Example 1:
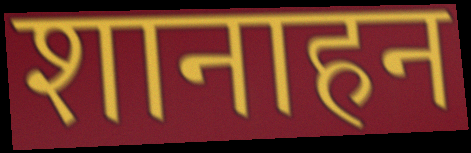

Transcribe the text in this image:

शानाहन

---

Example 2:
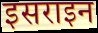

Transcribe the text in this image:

इसराइन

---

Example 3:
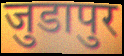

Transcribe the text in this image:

जुडापुर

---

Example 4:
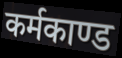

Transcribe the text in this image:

कर्मकाण्ड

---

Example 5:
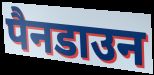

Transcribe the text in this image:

पैनडाउन